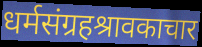
धर्मसंग्रहश्रावकाचार